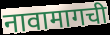
नावामागची